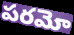
పరమో